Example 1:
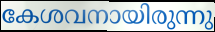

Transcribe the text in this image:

കേശവനായിരുന്നു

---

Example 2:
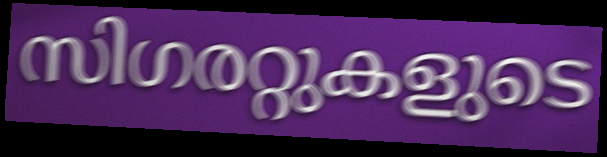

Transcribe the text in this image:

സിഗരറ്റുകളുടെ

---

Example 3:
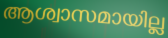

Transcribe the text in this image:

ആശ്വാസമായില്ല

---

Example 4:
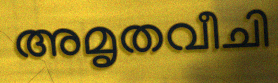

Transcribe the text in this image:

അമൃതവീചി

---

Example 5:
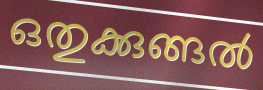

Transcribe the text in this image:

ഒതുക്കുങ്ങൽ